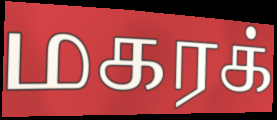
மகரக்